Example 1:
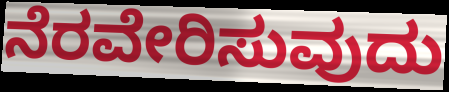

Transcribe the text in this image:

ನೆರವೇರಿಸುವುದು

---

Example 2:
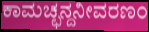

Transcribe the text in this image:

ಕಾಮಚ್ಛನ್ದನೀವರಣಂ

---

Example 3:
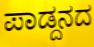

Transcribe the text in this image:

ಪಾಡ್ದನದ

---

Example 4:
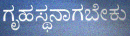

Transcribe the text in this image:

ಗೃಹಸ್ಥನಾಗಬೇಕು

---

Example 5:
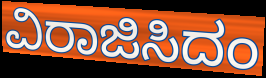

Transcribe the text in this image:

ವಿರಾಜಿಸಿದಂ